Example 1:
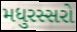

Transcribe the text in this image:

મધુરસ્સરો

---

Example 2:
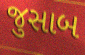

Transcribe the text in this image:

જુસાબ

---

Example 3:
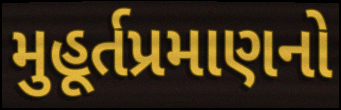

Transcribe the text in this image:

મુહૂર્તપ્રમાણનો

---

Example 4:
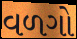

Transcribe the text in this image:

વળગો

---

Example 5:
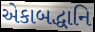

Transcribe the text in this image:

એકાબદ્ધાનિ